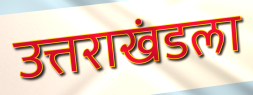
उत्तराखंडला